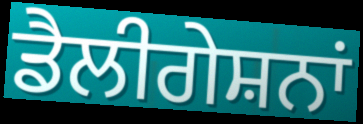
ਡੈਲੀਗੇਸ਼ਨਾਂ